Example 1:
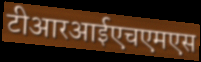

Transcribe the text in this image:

टीआरआईएचएमएस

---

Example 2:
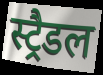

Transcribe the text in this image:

स्ट्रैडल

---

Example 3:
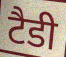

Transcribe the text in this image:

टैडी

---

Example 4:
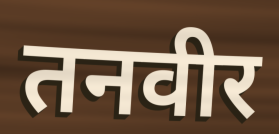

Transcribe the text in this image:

तनवीर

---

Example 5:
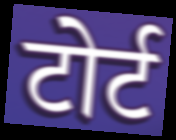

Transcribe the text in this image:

टोर्ट